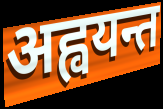
अह्वयन्त